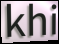
khi